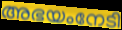
അഭയംനേടി